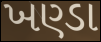
ખણ્ડા